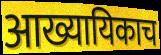
आख्यायिकाच